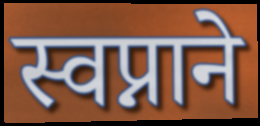
स्वप्नाने